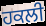
ਹਕਲੀ